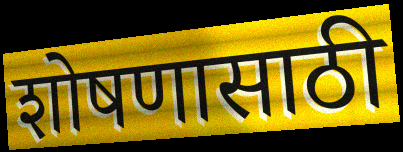
शोषणासाठी